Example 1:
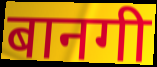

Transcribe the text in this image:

बानगी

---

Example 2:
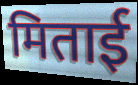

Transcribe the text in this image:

मिताई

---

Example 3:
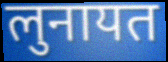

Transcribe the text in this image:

लुनायत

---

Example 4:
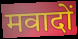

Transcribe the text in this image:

मवादों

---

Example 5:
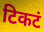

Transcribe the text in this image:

टिकटं